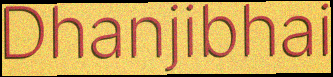
Dhanjibhai